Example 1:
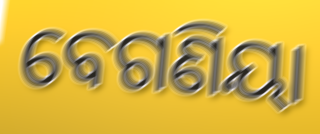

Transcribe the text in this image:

ବେଗଣିୟା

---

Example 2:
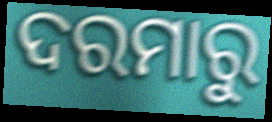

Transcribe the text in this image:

ଦରମାରୁ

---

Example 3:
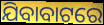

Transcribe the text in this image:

ଯିବାବାଟରେ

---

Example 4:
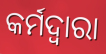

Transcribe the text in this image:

କର୍ମଦ୍ୱାରା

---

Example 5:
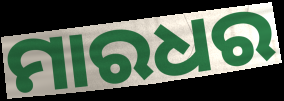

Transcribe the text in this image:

ମାରଧର